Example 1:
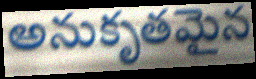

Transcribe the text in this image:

అనుకృతమైన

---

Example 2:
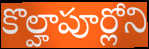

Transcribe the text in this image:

కొల్హాపూర్లోని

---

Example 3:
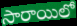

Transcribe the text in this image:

సారాయిలో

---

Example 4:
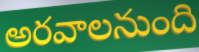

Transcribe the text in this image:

అరవాలనుంది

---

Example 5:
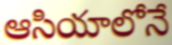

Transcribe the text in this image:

ఆసియాలోనే